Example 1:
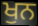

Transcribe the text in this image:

ਖੁਨ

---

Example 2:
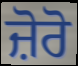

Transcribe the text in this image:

ਜ਼ੋਰੋ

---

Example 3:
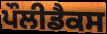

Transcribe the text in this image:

ਪੌਲੀਡੈਕਸ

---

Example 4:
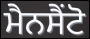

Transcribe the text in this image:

ਮੈਨਸੈਂਟੋ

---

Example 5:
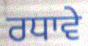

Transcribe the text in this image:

ਰਧਾਵੇ